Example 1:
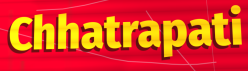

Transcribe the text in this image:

Chhatrapati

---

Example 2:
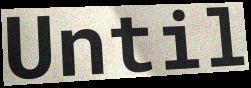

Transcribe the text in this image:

Until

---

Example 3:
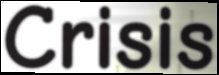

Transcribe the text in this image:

Crisis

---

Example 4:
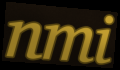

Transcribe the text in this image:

nmi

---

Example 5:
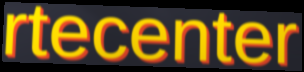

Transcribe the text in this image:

rtecenter